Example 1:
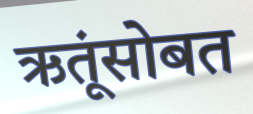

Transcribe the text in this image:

ऋतूंसोबत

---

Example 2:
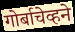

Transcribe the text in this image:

गोर्बाचेव्हने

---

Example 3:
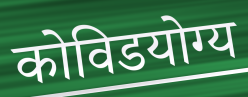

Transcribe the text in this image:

कोविडयोग्य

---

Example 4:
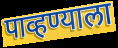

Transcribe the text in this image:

पाव्हण्याला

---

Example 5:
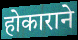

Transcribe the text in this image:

होकाराने